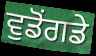
ਵੁਡੋਂਗਡੇ